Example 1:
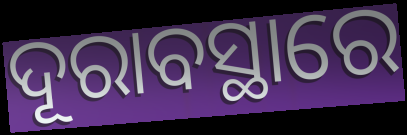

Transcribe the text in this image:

ଦୂରାବସ୍ଥାରେ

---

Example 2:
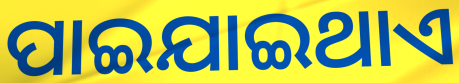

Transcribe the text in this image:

ପାଇଯାଇଥାଏ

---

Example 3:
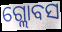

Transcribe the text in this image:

ଗ୍ଲୋବସ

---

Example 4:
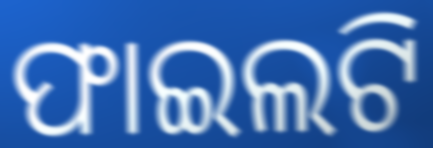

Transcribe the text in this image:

ଫାଇଲଟି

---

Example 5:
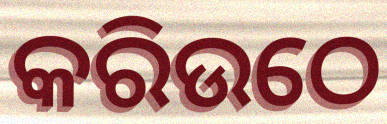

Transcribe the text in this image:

କରିଉଠେ